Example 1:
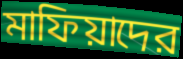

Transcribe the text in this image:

মাফিয়াদের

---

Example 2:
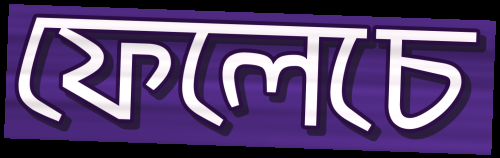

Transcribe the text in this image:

ফেলেচে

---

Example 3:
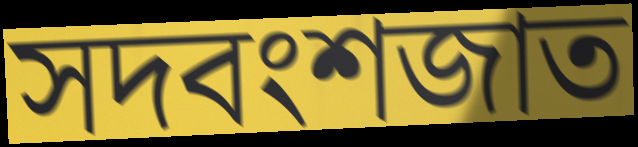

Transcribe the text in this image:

সদবংশজাত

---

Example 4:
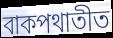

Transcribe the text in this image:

বাকপথাতীত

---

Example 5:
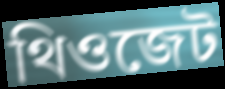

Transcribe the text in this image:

থিওজেট